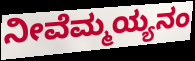
ನೀವೆಮ್ಮಯ್ಯನಂ